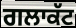
ਗਲਾਕੱਟ